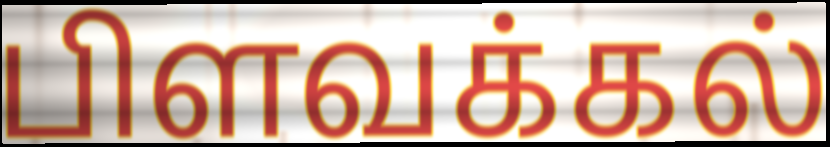
பிளவக்கல்